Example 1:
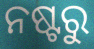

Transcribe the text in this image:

ନଷ୍ଟରୁ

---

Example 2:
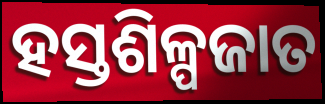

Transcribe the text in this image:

ହସ୍ତଶିଳ୍ପଜାତ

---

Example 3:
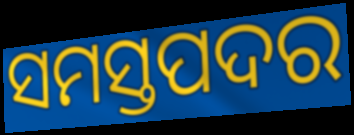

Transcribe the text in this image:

ସମସ୍ତପଦର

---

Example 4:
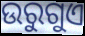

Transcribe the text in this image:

ଉରୁଗୁଏ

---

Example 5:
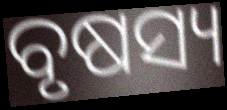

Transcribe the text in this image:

ବୃଷସ୍ୟ